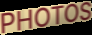
PHOTOS